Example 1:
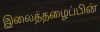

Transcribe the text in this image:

இலைத்தழைப்பின்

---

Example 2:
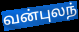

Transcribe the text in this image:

வன்புலந்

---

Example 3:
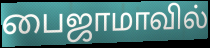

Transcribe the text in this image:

பைஜாமாவில்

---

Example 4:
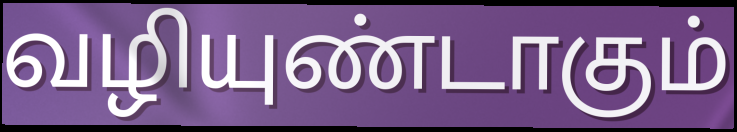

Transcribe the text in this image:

வழியுண்டாகும்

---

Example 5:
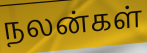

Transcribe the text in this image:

நலன்கள்